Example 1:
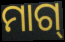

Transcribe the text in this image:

ମାଗ୍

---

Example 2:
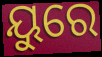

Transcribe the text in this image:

ୟୁରେ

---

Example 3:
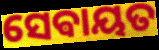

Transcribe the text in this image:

ସେଵାୟତ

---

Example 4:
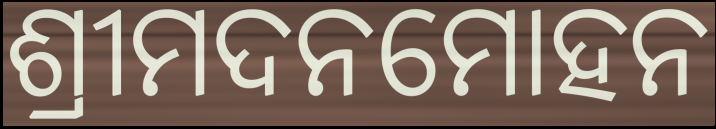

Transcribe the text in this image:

ଶ୍ରୀମଦନମୋହନ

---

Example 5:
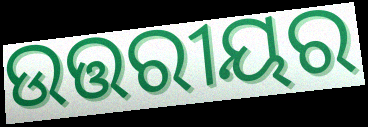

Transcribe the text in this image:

ଉତ୍ତରୀୟର